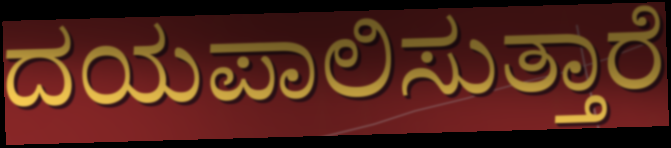
ದಯಪಾಲಿಸುತ್ತಾರೆ